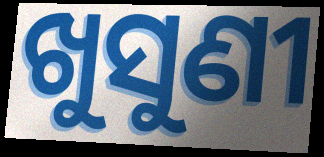
ଖୁସୁଣୀ